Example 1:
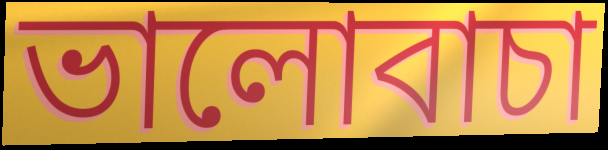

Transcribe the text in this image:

ভালোবাচা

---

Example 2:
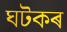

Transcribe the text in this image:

ঘটকৰ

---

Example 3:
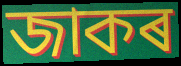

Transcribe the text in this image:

জাকৰ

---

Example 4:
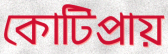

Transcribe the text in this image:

কোটিপ্ৰায়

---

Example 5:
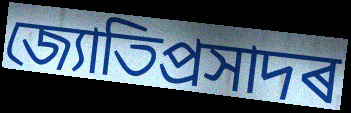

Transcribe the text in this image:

জ্যোতিপ্ৰসাদৰ